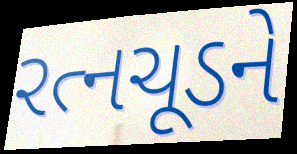
રત્નચૂડને